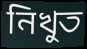
নিখুত